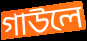
গাউলে